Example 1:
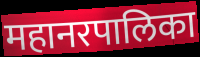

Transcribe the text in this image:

महानरपालिका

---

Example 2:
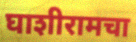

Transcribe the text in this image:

घाशीरामचा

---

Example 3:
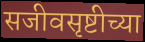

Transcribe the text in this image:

सजीवसृष्टीच्या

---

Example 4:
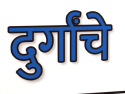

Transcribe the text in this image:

दुर्गांचे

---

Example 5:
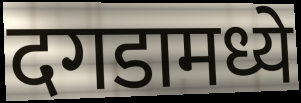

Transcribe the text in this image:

दगडामध्ये